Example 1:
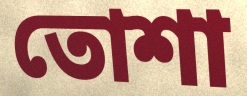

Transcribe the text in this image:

তোশা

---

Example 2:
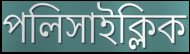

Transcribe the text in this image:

পলিসাইক্লিক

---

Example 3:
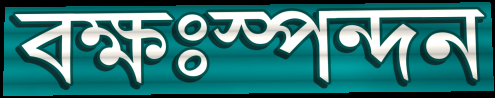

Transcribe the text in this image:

বক্ষঃস্পন্দন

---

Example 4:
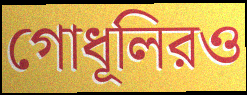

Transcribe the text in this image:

গোধূলিরও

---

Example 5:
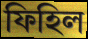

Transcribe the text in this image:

ফিহিল